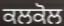
ਕਲਕੋਲ